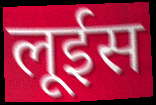
लूईस